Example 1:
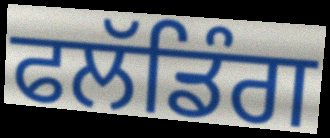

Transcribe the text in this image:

ਫਲੱਡਿੰਗ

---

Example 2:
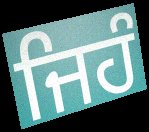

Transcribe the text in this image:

ਜਿਹੰ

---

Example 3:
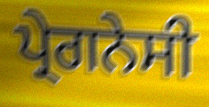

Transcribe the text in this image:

ਪ੍ਰੇਗਨੇਸੀ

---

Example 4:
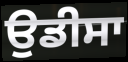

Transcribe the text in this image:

ਉਡੀਸਾ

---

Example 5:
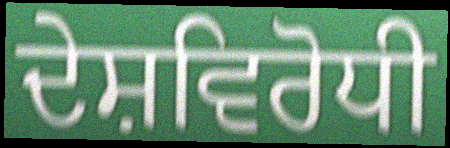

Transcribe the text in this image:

ਦੇਸ਼ਵਿਰੋਧੀ